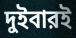
দুইবারই